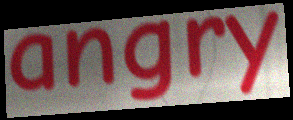
angry